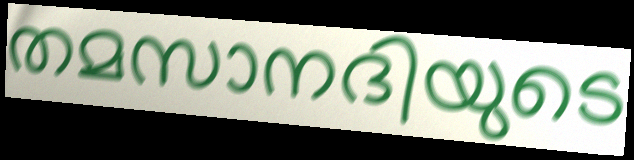
തമസാനദിയുടെ